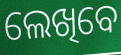
ଲେଖିବେ